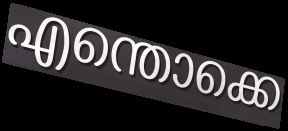
എന്തൊക്കെ